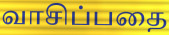
வாசிப்பதை